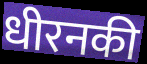
धीरनकी